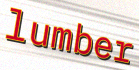
lumber